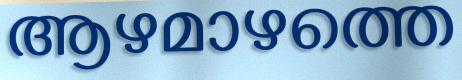
ആഴമാഴത്തെ